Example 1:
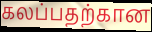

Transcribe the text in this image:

கலப்பதற்கான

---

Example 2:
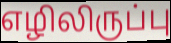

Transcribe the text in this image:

எழிலிருப்பு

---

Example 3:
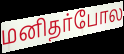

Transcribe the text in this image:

மனிதர்போல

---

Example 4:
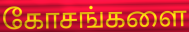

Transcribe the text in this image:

கோசங்களை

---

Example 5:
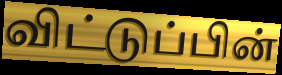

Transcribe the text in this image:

விட்டுப்பின்